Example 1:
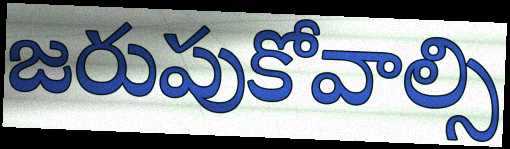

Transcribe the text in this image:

జరుపుకోవాల్సి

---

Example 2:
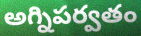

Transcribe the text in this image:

అగ్నిపర్వతం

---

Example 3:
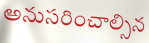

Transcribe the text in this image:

అనుసరించాల్సిన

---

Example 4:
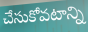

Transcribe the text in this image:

చేసుకోవటాన్ని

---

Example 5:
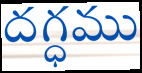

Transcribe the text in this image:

దగ్ధము